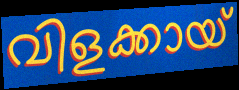
വിളക്കായ്